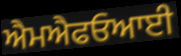
ਐਮਐਫਓਆਈ